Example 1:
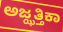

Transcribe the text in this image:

ಅಜ್ಝತ್ತಿಕಾ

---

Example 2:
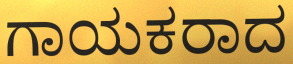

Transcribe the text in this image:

ಗಾಯಕರಾದ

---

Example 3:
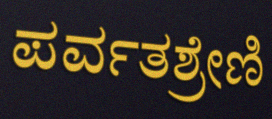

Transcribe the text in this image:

ಪರ್ವತಶ್ರೇಣಿ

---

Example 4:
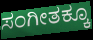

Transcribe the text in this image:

ಸಂಗೀತಕ್ಕೂ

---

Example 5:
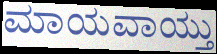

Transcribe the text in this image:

ಮಾಯವಾಯ್ತು